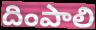
దింపాలి